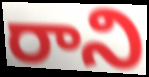
రాని